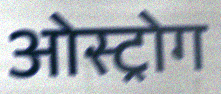
ओस्ट्रोग